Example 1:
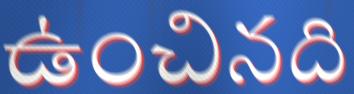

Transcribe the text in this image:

ఉంచినది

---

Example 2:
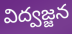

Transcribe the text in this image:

విద్వజ్జన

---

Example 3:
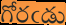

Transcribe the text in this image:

గోరఁడు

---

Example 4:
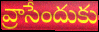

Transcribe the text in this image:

వ్రాసేందుకు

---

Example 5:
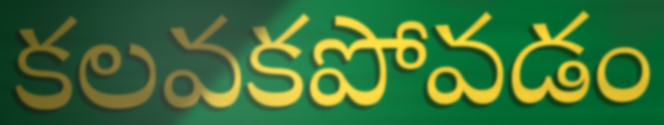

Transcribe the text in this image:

కలవకపోవడం